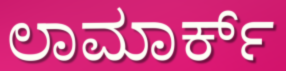
ಲಾಮಾರ್ಕ್